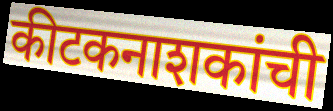
कीटकनाशकांची